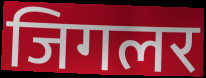
जिगलर